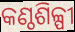
କଣ୍ଠଶିଳ୍ପୀ